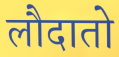
लौदातो